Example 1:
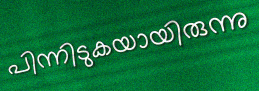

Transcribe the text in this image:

പിന്നിടുകയായിരുന്നു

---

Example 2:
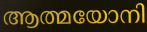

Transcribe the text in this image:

ആത്മയോനി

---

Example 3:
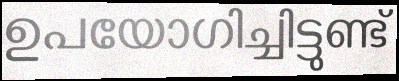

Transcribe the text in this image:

ഉപയോഗിച്ചിട്ടുണ്ട്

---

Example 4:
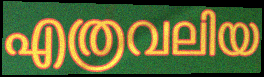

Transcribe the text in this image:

എത്രവലിയ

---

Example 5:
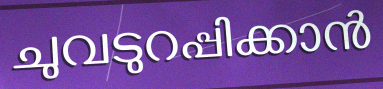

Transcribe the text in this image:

ചുവടുറപ്പിക്കാൻ